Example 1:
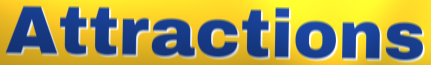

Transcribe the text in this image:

Attractions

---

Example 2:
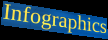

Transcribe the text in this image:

Infographics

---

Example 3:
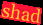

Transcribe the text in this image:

shad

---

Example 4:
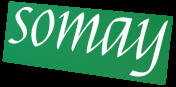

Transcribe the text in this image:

somay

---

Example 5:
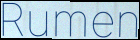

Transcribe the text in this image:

Rumen